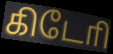
கிடேரி